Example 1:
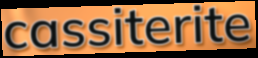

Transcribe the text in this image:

cassiterite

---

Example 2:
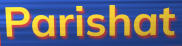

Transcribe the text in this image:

Parishat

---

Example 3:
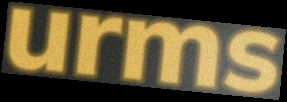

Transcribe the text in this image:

urms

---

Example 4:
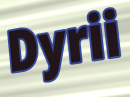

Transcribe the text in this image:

Dyrii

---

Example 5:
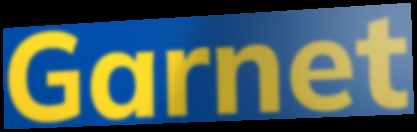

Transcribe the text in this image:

Garnet